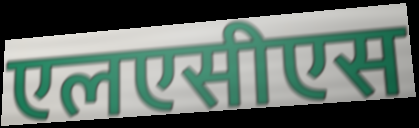
एलएसीएस